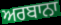
ਅਰਬਾਨਾ